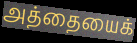
அத்தையைக்